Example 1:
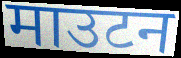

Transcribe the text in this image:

माउटन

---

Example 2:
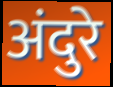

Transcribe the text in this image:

अंदुरे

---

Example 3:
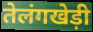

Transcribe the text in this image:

तेलंगखेड़ी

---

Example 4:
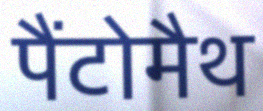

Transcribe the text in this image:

पैंटोमैथ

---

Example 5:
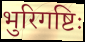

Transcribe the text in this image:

भुरिगष्टिः